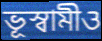
ভূস্বামীও